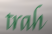
trah